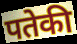
पतेकी